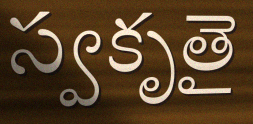
స్వకృతై